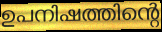
ഉപനിഷത്തിന്റെ